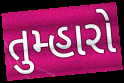
તુમ્હારો